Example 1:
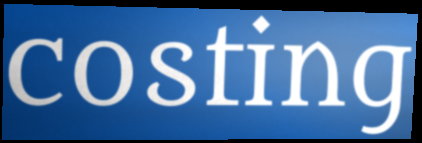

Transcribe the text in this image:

costing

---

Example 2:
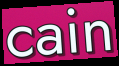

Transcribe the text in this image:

cain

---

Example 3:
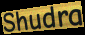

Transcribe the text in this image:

Shudra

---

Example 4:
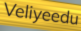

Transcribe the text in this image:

Veliyeedu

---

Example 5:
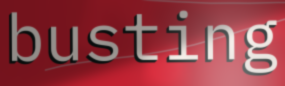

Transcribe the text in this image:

busting